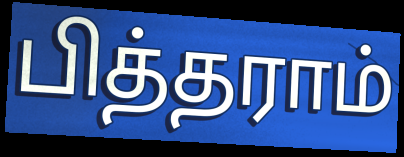
பித்தராம்